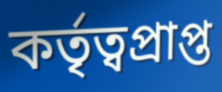
কৰ্তৃত্বপ্ৰাপ্ত